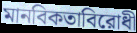
মানবিকতাবিরোধী